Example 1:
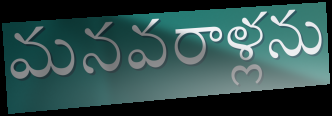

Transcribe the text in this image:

మనవరాళ్లను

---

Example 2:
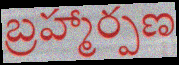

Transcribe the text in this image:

బ్రహ్మార్పణ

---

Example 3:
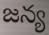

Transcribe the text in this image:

జన్య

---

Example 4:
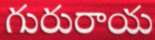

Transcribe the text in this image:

గురురాయ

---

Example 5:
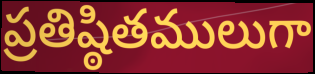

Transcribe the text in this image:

ప్రతిష్ఠితములుగా